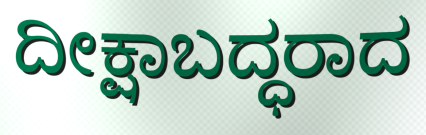
ದೀಕ್ಷಾಬದ್ಧರಾದ